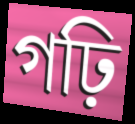
গঢ়ি